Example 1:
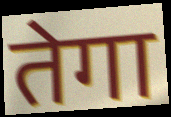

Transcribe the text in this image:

तेगा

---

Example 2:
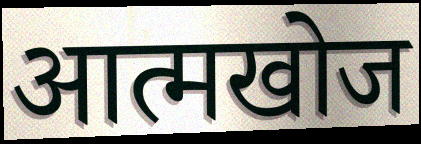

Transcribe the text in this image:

आत्मखोज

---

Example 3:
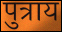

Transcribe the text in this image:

पुत्राय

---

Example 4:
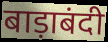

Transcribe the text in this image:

बाड़ाबंदी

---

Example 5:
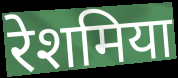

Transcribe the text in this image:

रेशमिया